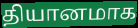
தியானமாக